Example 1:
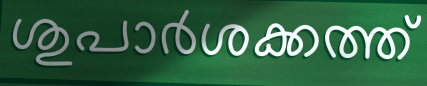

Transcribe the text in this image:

ശുപാർശക്കത്ത്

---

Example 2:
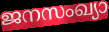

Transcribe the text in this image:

ജനസംഖ്യാ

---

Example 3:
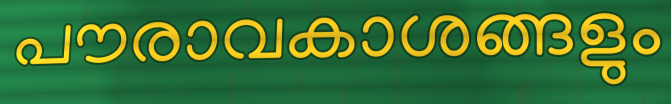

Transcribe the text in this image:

പൗരാവകാശങ്ങളും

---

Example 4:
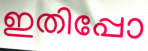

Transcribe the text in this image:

ഇതിപ്പോ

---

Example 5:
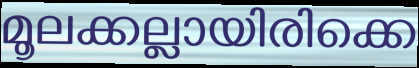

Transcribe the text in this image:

മൂലക്കല്ലായിരിക്കെ